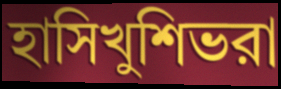
হাসিখুশিভরা